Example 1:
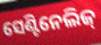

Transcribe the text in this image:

ସେଣ୍ଟିନେଲିଜ୍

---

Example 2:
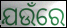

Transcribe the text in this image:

ଯଉଁରେ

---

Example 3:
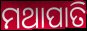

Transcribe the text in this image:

ମଥାପାତି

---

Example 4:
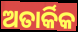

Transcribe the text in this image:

ଅତାର୍କିକ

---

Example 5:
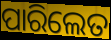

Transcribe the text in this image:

ପାରିଲେତ